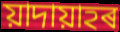
য়াদায়াহৰ